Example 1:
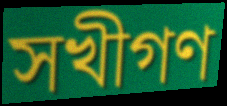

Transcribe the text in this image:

সখীগণ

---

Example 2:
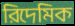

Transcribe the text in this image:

রিদেমিক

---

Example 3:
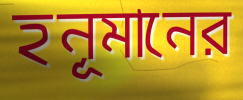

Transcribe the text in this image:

হনূমানের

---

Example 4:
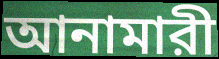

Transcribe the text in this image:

আনামারী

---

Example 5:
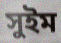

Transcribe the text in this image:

সুইম